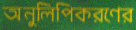
অনুলিপিকরণের